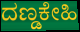
ದಣ್ಡಕೇಹಿ